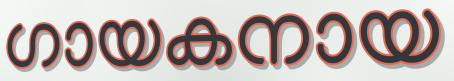
ഗായകനായ